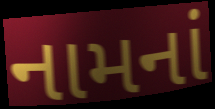
નામનાં